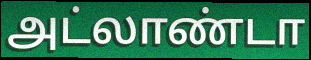
அட்லாண்டா